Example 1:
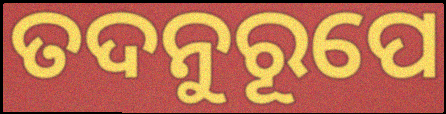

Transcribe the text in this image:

ତଦନୁରୂପେ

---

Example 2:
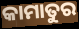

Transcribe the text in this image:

କାମାତୁର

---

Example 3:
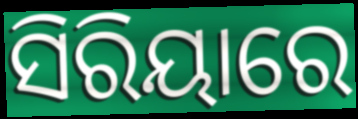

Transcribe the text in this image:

ସିରିୟାରେ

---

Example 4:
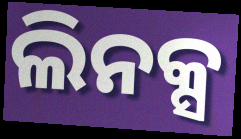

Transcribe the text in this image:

ଲିନକ୍ସ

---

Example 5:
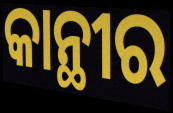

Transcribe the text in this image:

କାନ୍ଥୀର